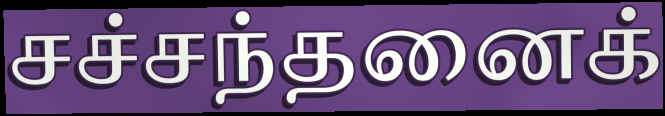
சச்சந்தனைக்